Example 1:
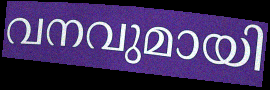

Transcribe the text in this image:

വനവുമായി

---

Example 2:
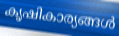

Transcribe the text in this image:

കൃഷികാര്യങ്ങൾ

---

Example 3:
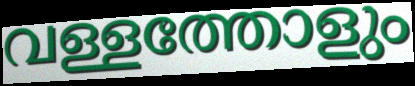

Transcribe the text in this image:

വള്ളത്തോളും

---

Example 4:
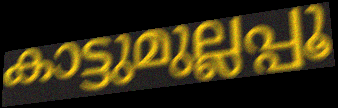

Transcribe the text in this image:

കാട്ടുമുല്ലപ്പൂ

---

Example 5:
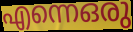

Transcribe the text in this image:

എന്നെഒരു